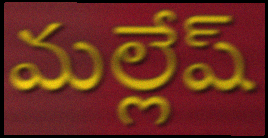
మల్లేష్